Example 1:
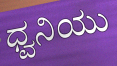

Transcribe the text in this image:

ಧ್ವನಿಯು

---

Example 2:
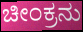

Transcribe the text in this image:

ಚೀಂಕ್ರನು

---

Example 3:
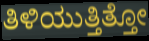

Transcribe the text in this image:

ತಿಳಿಯುತ್ತಿತ್ತೋ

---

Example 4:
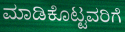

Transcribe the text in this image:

ಮಾಡಿಕೊಟ್ಟವರಿಗೆ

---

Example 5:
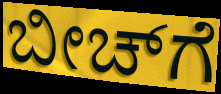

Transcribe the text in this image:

ಬೀಚ್‌ಗೆ